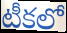
టీకలో